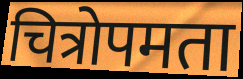
चित्रोपमता